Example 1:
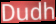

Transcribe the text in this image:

Dudh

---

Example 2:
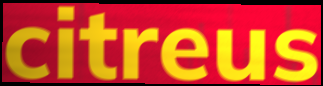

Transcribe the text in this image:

citreus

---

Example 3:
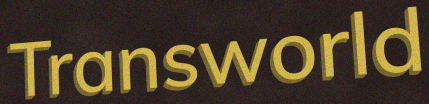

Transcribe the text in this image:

Transworld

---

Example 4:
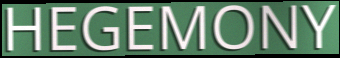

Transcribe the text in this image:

HEGEMONY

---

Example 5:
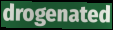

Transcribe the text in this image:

drogenated